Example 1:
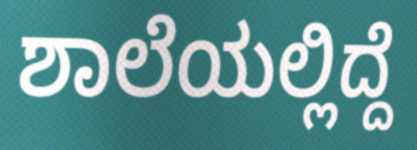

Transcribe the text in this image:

ಶಾಲೆಯಲ್ಲಿದ್ದೆ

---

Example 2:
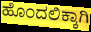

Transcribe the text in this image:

ಹೊಂದಲಿಕ್ಕಾಗಿ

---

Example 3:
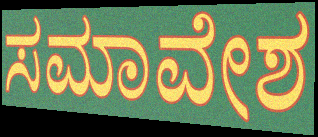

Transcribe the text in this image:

ಸಮಾವೇಶ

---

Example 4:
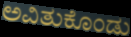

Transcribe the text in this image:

ಅವಿತುಕೊಂಡು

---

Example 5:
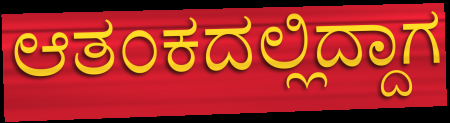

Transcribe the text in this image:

ಆತಂಕದಲ್ಲಿದ್ದಾಗ